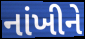
નાંખીને